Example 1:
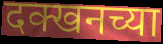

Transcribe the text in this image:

दक्खनच्या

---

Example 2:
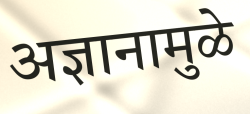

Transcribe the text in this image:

अज्ञानामुळे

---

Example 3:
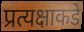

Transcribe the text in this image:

प्रत्यक्षाकडे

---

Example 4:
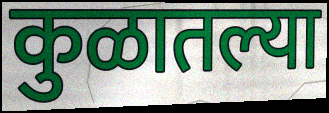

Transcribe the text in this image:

कुळातल्या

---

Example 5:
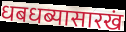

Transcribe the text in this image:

धबधब्यासारखं